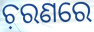
ଚ଼ରଣରେ